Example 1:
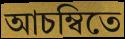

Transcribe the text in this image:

আচম্বিতে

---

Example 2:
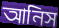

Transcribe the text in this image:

আনিস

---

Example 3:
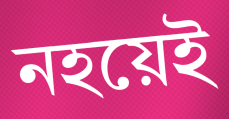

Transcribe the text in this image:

নহয়েই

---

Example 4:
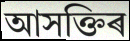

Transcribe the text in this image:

আসক্তিৰ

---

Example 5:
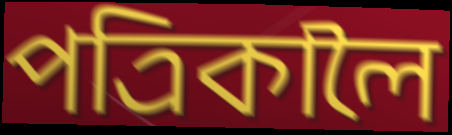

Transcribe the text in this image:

পত্ৰিকালৈ